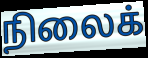
நிலைக்